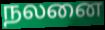
நலனை